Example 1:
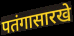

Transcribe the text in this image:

पतंगासारखे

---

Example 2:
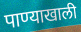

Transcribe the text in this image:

पाण्‍याखाली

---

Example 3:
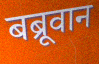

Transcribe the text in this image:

बब्रूवान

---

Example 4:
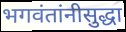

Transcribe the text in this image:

भगवंतांनीसुद्धा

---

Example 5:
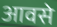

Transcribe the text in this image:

आवसे